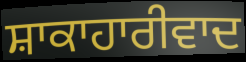
ਸ਼ਾਕਾਹਾਰੀਵਾਦ